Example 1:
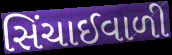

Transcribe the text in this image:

સિંચાઈવાળી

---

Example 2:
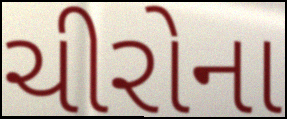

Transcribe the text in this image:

ચીરોના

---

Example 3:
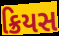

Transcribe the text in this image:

ક્રિયસ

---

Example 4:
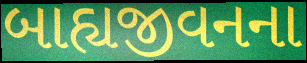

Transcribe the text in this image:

બાહ્યજીવનના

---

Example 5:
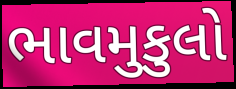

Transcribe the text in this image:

ભાવમુકુલો